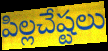
పిల్లచేష్టలు